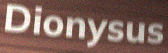
Dionysus